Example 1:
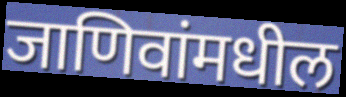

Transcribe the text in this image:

जाणिवांमधील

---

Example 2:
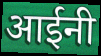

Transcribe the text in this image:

आईनी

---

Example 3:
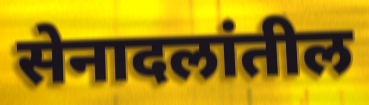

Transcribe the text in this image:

सेनादलांतील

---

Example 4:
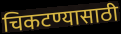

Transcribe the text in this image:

चिकटण्यासाठी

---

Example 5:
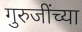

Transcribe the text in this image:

गुरुजींच्या